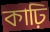
কাঢ়ি